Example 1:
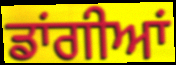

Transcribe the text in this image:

ਡਾਂਗੀਆਂ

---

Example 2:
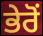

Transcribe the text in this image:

ਭੇਰੋਂ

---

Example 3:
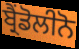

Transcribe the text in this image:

ਬ੍ਰੈਂਡੋਲੀਨੋ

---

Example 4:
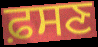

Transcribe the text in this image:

ਫ਼ਸਣ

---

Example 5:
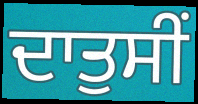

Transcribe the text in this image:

ਦਾਤੁਸੀਂ